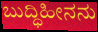
ಬುದ್ಧಿಹೀನನು